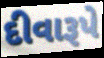
દીવારૂપે